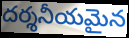
దర్శనీయమైన